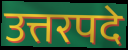
उत्तरपदे